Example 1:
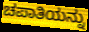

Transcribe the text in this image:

ಚಪಾತಿಯನ್ನು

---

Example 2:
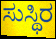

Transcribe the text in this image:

ಸುಸ್ಥಿರ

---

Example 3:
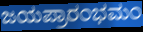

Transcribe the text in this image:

ಜಯಪ್ರಾರಂಭಮಂ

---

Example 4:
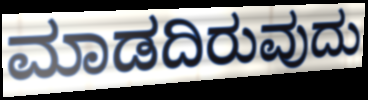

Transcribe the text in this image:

ಮಾಡದಿರುವುದು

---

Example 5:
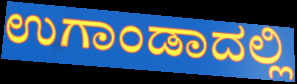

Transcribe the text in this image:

ಉಗಾಂಡಾದಲ್ಲಿ